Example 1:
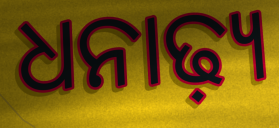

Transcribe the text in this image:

ଧନାଢ଼୍ୟ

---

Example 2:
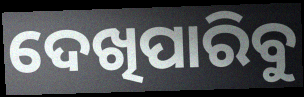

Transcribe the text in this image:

ଦେଖିପାରିବୁ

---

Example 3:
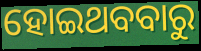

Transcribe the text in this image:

ହୋଇଥବବାରୁ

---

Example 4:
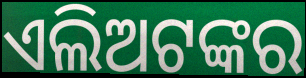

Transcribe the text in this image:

ଏଲିଅଟଙ୍କର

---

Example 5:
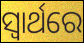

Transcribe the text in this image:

ସ୍ଵାର୍ଥରେ